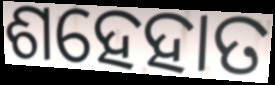
ଶହେହାତ